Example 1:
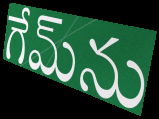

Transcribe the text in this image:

గేమ్‌ను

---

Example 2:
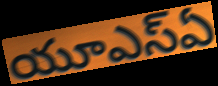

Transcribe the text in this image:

యూఎస్ఏ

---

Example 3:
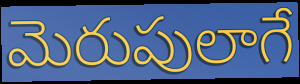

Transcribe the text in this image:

మెరుపులాగే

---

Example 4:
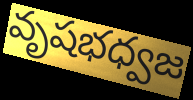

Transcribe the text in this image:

వృషభధ్వజ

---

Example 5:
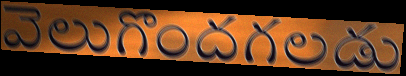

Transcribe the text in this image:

వెలుగొందగలడు